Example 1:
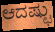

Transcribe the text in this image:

ಆದಷ್ಟು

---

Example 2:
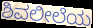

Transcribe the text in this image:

ಶಿವಲೀಲೆಯ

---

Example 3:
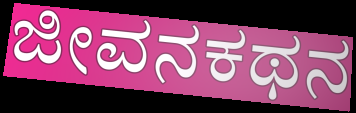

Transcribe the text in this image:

ಜೀವನಕಥನ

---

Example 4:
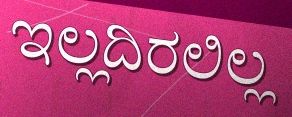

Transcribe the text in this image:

ಇಲ್ಲದಿರಲಿಲ್ಲ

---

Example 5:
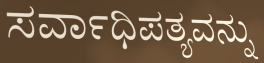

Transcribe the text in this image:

ಸರ್ವಾಧಿಪತ್ಯವನ್ನು